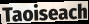
Taoiseach